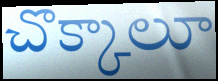
చొక్కాలూ